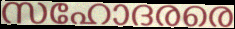
സഹോദരരെ